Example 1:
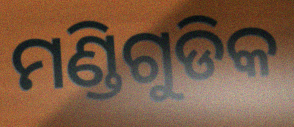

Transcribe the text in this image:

ମଣ୍ଡିଗୁଡିକ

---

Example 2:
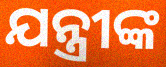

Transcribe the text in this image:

ଯନ୍ତ୍ରୀଙ୍କ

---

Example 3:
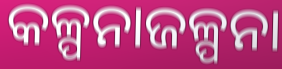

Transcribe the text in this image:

କଳ୍ପନାଜଳ୍ପନା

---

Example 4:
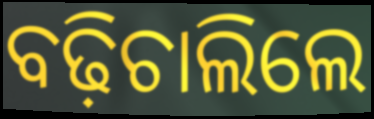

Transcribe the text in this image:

ବଢ଼ିଚାଲିଲେ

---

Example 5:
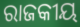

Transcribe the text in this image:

ରାଜକୀୟ